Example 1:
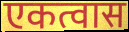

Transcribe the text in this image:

एकत्वास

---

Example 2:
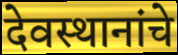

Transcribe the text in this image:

देवस्थानांचे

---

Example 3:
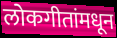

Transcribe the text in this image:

लोकगीतांमधून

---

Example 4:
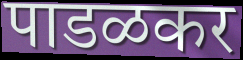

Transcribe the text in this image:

पाडळकर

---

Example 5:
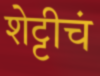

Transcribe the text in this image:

शेट्टीचं